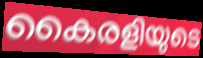
കൈരളിയുടെ